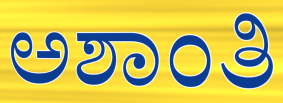
ಅಶಾಂತಿ